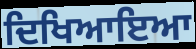
ਦਿਖਿਆਇਆ